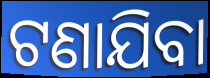
ଟଣାଯିବା